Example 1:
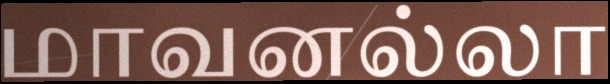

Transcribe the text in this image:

மாவனல்லா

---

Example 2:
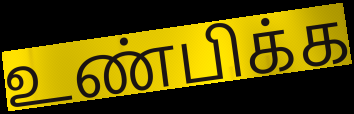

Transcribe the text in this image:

உண்பிக்க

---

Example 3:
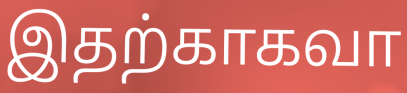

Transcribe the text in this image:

இதற்காகவா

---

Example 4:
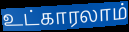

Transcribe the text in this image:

உட்காரலாம்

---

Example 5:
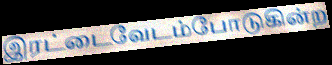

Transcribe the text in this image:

இரட்டைவேடம்போடுகின்ற